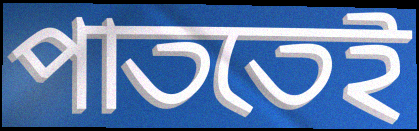
পাততেই